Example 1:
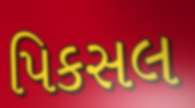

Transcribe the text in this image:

પિકસલ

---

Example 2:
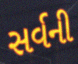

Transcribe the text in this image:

સર્વની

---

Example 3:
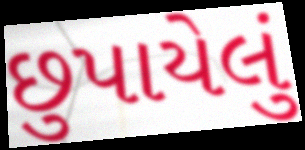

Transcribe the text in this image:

છુપાયેલું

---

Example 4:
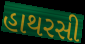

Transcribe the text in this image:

હાથરસી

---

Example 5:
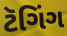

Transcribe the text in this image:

ટૅગિંગ